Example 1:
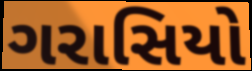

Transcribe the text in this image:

ગરાસિયો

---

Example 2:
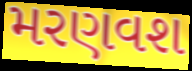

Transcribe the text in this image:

મરણવશ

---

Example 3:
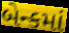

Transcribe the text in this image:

બેન્કમાં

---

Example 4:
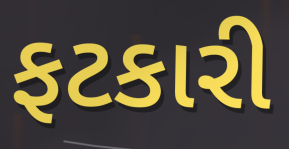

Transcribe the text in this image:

ફટકારી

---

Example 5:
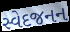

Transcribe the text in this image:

સ્વેદજનન